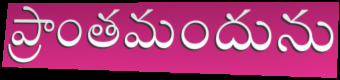
ప్రాంతమందును